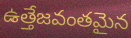
ఉత్తేజవంతమైన